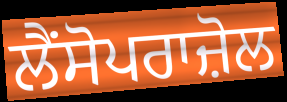
ਲੈਂਸੋਪਰਾਜ਼ੋਲ